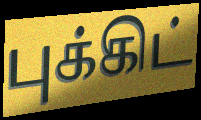
புக்கிட்